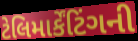
ટેલિમાર્કેંટિંગની